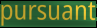
pursuant